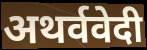
अथर्ववेदी